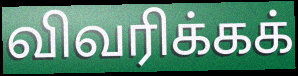
விவரிக்கக்